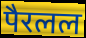
पैरलल